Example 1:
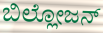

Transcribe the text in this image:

ಬಿಲ್ಲೋಜನ್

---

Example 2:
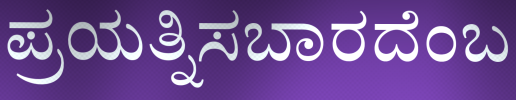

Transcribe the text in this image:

ಪ್ರಯತ್ನಿಸಬಾರದೆಂಬ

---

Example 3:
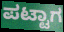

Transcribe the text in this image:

ಪಟ್ಟಾಗ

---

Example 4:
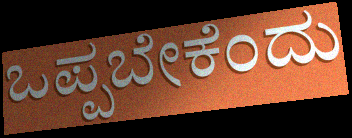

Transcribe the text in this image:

ಒಪ್ಪಬೇಕೆಂದು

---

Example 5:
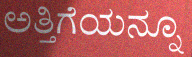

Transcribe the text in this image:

ಅತ್ತಿಗೆಯನ್ನೂ